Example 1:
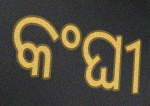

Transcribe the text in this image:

କଂଘୀ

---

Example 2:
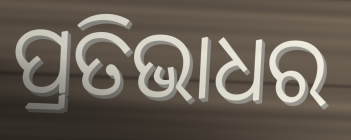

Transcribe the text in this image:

ପ୍ରତିଭାଧର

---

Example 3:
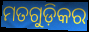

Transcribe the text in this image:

ମତଗୁଡ଼ିକର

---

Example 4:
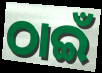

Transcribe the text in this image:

ଠାଇଁ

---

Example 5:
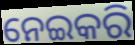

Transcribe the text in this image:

ନେଇକରି